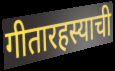
गीतारहस्याची